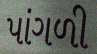
પાંગળી